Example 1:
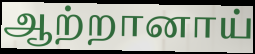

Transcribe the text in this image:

ஆற்றானாய்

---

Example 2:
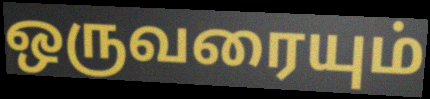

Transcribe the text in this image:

ஒருவரையும்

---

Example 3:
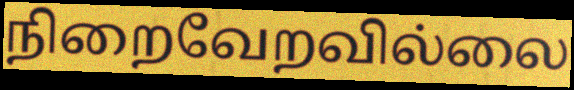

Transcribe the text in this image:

நிறைவேறவில்லை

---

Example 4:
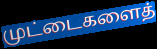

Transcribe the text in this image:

முட்டைகளைத்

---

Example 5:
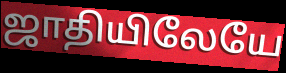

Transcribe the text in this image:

ஜாதியிலேயே